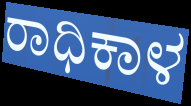
ರಾಧಿಕಾಳ